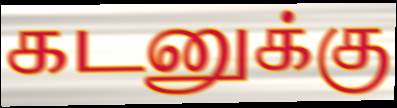
கடனுக்கு